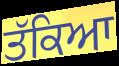
ਤੱਕਿਆ